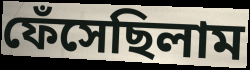
ফেঁসেছিলাম